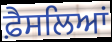
ਫ਼ੈਸਲਿਆਂ